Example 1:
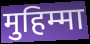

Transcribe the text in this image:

मुहिम्मा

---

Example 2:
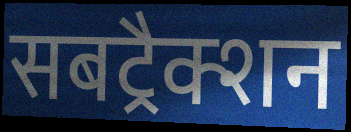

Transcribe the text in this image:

सबट्रैक्शन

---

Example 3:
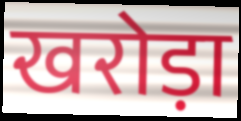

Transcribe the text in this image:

खरोड़ा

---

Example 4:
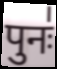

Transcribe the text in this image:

पुनः॑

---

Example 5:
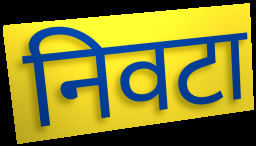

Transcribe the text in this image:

निवटा